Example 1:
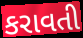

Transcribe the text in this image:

કરાવતી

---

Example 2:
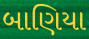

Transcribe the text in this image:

બાણિયા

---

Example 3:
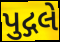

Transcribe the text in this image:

પુદ્ગલે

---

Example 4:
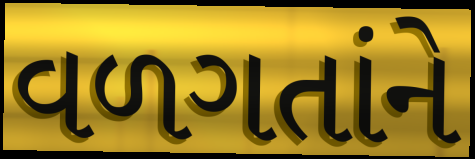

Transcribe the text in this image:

વળગતાંને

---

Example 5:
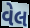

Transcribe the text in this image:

વેલ